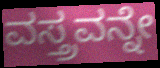
ವಸ್ತ್ರವನ್ನೇ